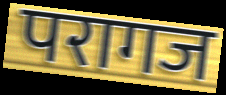
परागज